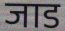
जाड